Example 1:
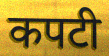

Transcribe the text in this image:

कपटी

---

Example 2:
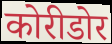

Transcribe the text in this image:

कोरीडोर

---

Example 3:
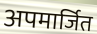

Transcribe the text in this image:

अपमार्जित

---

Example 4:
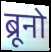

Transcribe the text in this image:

ब्रूनो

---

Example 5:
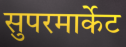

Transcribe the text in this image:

सुपरमार्केट